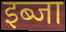
इब्जा